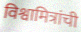
विश्वामित्रांची